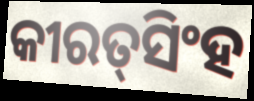
କୀରତ୍‍ସିଂହ